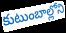
కుటుంబాల్లోని